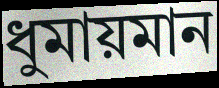
ধুমায়মান